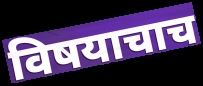
विषयाचाच